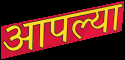
आपल्या